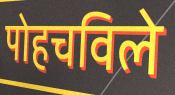
पोहचविले